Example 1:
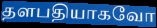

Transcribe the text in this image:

தளபதியாகவோ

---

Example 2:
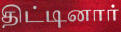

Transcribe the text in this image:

திட்டினார்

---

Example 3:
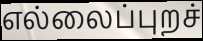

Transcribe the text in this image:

எல்லைப்புறச்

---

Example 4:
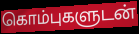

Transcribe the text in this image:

கொம்புகளுடன்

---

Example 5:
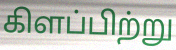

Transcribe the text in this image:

கிளப்பிற்று